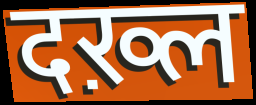
दख़्ल